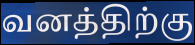
வனத்திற்கு